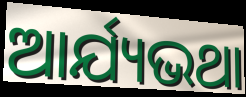
ଆର୍ଯ୍ୟଭଥା